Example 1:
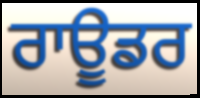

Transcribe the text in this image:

ਰਾਊਡਰ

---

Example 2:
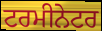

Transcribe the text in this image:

ਟਰਮੀਨੇਟਰ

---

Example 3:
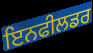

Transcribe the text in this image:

ਇਨਫੀਲਡਰ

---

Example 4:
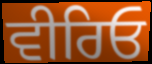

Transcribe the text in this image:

ਵੀਰਿਓ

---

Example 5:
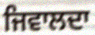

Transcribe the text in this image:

ਜਿਵਾਲਦਾ